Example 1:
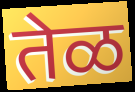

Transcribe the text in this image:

तेळ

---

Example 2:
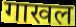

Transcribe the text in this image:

गाखल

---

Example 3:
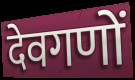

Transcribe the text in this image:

देवगणों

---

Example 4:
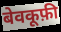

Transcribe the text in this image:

बेवकूफ़ी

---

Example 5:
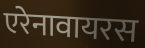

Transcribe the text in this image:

एरेनावायरस